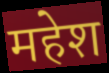
महेश